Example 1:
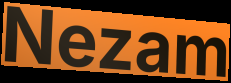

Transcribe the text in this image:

Nezam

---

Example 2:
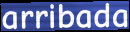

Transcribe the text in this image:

arribada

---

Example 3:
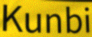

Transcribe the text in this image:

Kunbi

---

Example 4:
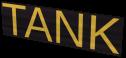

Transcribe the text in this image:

TANK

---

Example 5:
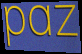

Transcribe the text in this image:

paz